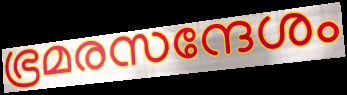
ഭ്രമരസന്ദേശം